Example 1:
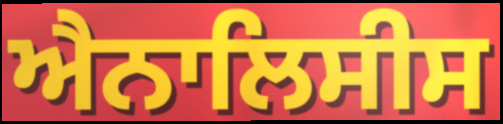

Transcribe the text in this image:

ਐਨਾਲਿਸੀਸ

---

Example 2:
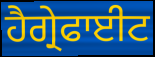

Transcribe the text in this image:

ਹੈਗ੍ਰੇਫਾਈਟ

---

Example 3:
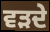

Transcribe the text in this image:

ਵੜਦੇ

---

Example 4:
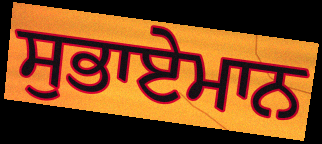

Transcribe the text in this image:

ਸੁਭਾਏਮਾਨ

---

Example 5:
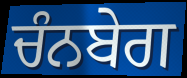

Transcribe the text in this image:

ਚੰਨਬੇਗ